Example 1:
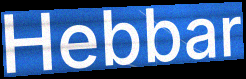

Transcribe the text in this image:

Hebbar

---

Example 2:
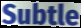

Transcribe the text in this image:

Subtle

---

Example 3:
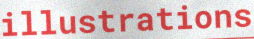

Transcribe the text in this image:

illustrations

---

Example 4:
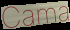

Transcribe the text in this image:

Cama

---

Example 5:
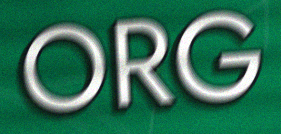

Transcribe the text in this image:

ORG